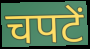
चपटें